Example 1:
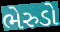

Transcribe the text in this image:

ભેરુડો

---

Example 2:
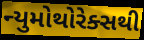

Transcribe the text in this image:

ન્યુમોથોરેક્સથી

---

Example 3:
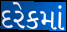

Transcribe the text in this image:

દરેકમાં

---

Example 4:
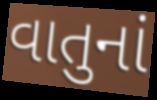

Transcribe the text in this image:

વાતુનાં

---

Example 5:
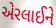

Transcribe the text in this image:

એરલાઈને